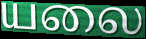
யலை